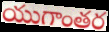
యుగాంతర